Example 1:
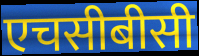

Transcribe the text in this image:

एचसीबीसी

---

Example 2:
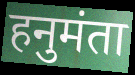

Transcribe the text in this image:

हनुमंता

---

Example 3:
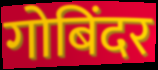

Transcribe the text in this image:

गोबिंदर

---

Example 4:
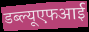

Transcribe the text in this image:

डब्ल्यूएफआई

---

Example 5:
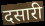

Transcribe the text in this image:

दसारी